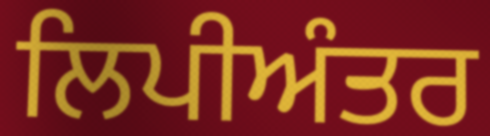
ਲਿਪੀਅੰਤਰ